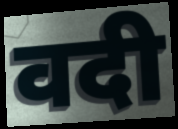
वदी